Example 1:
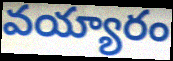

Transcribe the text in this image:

వయ్యారం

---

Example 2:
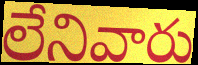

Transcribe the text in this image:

లేనివారు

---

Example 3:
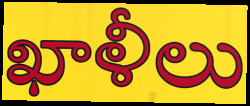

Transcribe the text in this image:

ఖాళీలు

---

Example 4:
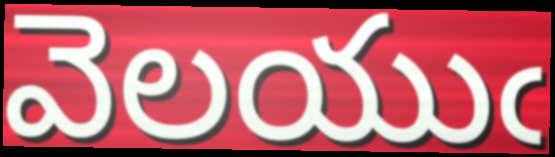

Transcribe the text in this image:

వెలయుఁ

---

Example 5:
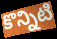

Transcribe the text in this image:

కొన్నిటి